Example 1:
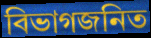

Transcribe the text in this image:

বিভাগজনিত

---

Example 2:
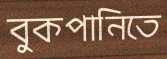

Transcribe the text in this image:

বুকপানিতে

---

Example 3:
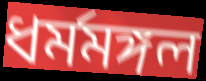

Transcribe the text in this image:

ধর্মমঙ্গল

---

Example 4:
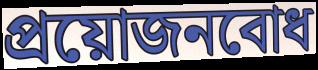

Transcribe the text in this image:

প্রয়োজনবোধ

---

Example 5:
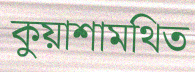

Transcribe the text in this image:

কুয়াশামথিত